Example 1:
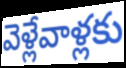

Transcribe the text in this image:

వెళ్లేవాళ్లకు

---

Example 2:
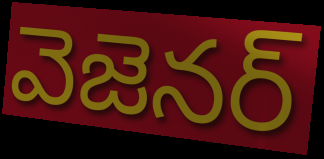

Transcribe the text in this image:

వెజెనర్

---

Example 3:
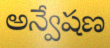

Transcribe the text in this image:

అన్వేషణ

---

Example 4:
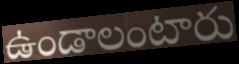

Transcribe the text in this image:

ఉండాలంటారు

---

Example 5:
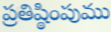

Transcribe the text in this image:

ప్రతిష్ఠింపుము